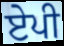
ਏਪੀ